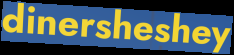
dinersheshey